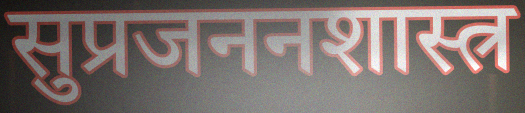
सुप्रजननशास्त्र